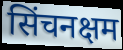
सिंचनक्षम